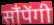
सौंपेंगी